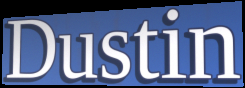
Dustin